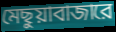
মেছুয়াবাজারে